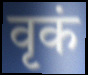
वृकं